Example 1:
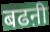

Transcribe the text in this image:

बढऩी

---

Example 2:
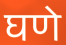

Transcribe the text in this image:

घणे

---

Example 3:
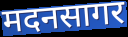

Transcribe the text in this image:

मदनसागर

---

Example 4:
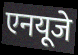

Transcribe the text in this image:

एनयूजे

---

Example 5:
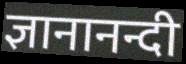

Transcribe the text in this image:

ज्ञानानन्दी